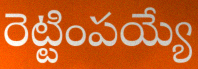
రెట్టింపయ్యే